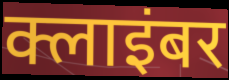
क्लाइंबर